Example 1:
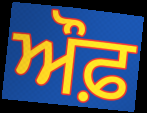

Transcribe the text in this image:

ਔਫ਼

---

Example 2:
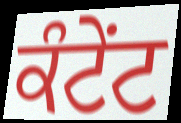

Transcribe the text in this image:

ਕੰਟੇਂਟ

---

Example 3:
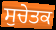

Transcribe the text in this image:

ਸੁਚੇਤਕ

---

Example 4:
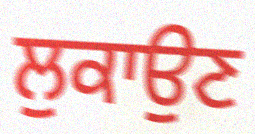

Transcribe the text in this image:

ਲੁਕਾਉਣ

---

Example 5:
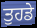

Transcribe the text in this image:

ਤੁਹਡੇ